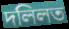
দলিলত